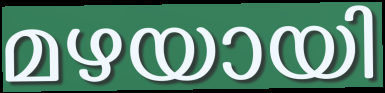
മഴയായി